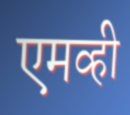
एमव्ही